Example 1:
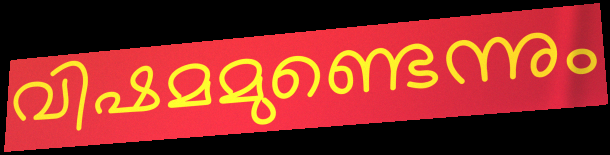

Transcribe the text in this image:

വിഷമമുണ്ടെന്നും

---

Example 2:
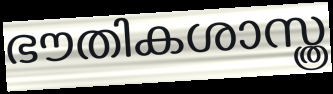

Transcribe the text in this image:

ഭൗതികശാസ്ത്ര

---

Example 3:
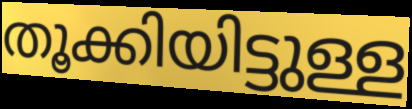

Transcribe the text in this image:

തൂക്കിയിട്ടുള്ള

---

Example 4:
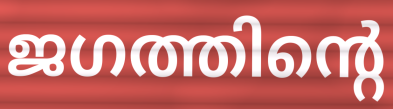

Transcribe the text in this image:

ജഗത്തിന്റെ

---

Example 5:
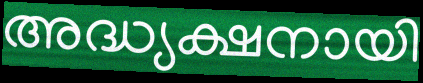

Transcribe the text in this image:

അദ്ധ്യക്ഷനായി